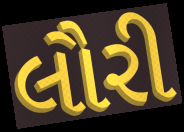
લૌરી